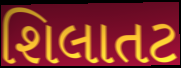
શિલાતટ